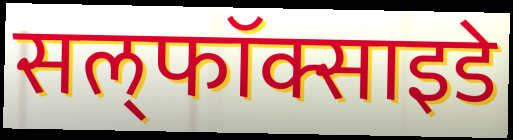
सल्फॉक्साइडे